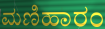
ಮಣಿಹಾರಂ